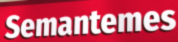
Semantemes